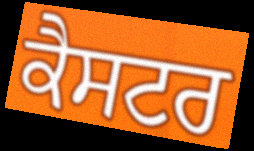
ਕੈਸਟਰ